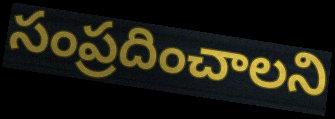
సంప్రదించాలని